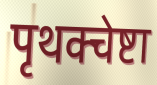
पृथक्चेष्टा